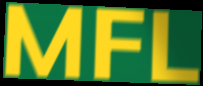
MFL